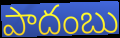
పాదంబు